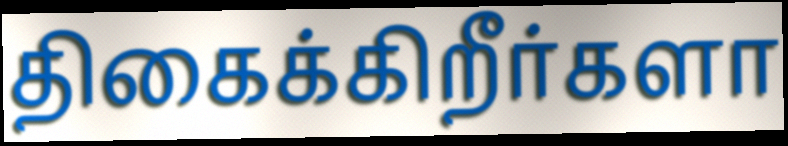
திகைக்கிறீர்களா